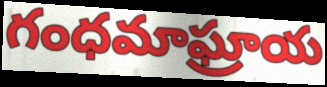
గంధమాఘ్రాయ